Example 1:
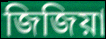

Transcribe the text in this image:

জিজিয়া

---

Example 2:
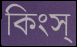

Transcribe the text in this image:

কিংস্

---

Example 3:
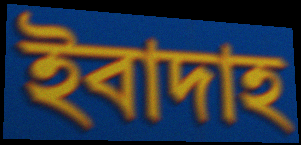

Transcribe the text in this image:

ইবাদাহ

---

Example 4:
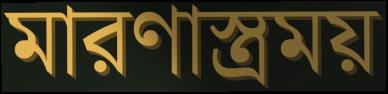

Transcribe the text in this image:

মারণাস্ত্রময়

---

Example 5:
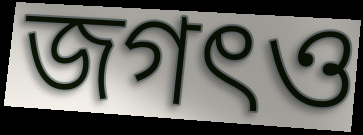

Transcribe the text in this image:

জগৎও